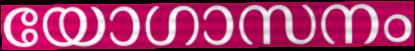
യോഗാസനം